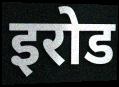
इरोड